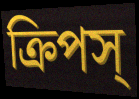
ক্রিপস্